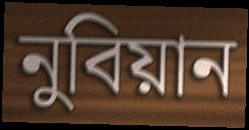
নুবিয়ান